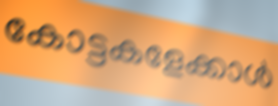
കോട്ടകളേക്കാൾ